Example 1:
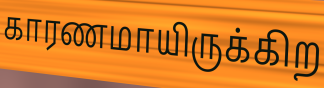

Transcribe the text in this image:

காரணமாயிருக்கிற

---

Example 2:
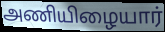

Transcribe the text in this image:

அணியிழையார்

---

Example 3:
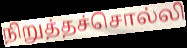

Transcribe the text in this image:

நிறுத்தச்சொல்லி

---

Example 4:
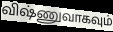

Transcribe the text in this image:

விஷ்ணுவாகவும்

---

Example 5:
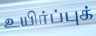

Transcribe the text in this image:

உயிர்ப்புக்